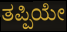
ತಪ್ಪಿಯೇ